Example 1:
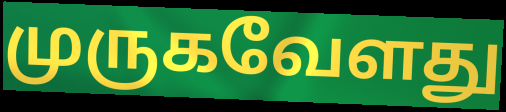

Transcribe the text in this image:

முருகவேளது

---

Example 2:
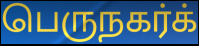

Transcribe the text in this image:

பெருநகர்க்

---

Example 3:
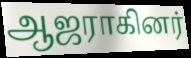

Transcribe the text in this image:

ஆஜராகினர்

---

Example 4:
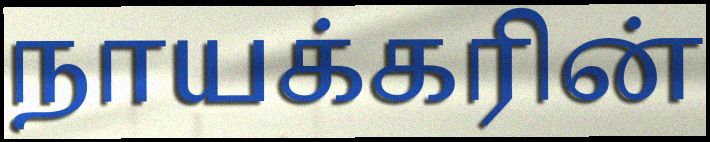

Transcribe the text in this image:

நாயக்கரின்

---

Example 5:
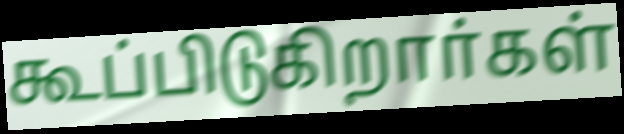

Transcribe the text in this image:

கூப்பிடுகிறார்கள்